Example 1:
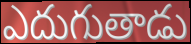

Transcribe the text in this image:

ఎదుగుతాడు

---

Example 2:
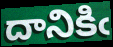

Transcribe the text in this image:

దానికిఁ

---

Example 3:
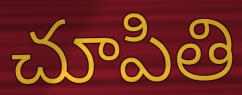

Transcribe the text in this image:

చూపితి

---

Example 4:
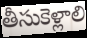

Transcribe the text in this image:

తీసుకెళ్లాలి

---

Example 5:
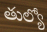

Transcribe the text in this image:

తుల్యో